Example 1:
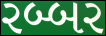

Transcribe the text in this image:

રબ્બર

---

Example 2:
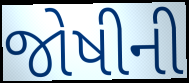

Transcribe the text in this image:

જોષીની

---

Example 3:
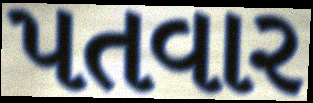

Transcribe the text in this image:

પતવાર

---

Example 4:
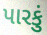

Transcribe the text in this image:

પારકું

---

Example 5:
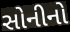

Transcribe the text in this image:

સોનીનો